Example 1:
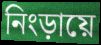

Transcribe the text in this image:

নিংড়ায়ে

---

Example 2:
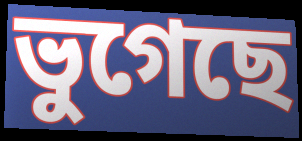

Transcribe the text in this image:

ভুগেছে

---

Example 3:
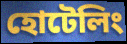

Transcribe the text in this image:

হোটেলিং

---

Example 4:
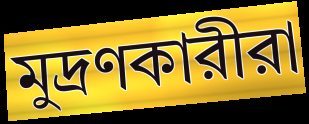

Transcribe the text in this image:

মুদ্রণকারীরা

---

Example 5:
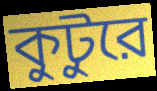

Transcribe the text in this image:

কুটুরে